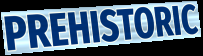
PREHISTORIC